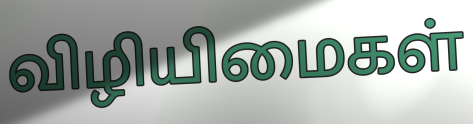
விழியிமைகள்